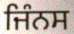
ਜਿੰਨਸ